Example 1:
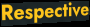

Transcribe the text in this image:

Respective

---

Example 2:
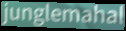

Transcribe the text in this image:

junglemahal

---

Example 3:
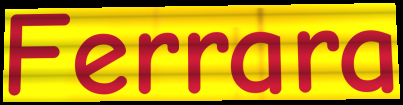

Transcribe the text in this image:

Ferrara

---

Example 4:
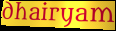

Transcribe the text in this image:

dhairyam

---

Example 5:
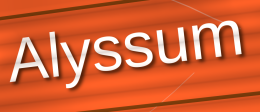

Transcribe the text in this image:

Alyssum